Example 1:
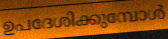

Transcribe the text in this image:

ഉപദേശിക്കുമ്പോൾ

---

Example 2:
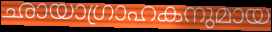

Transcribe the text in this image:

ഛായാഗ്രാഹകനുമായ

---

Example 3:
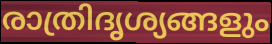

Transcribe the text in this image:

രാത്രിദൃശ്യങ്ങളും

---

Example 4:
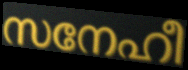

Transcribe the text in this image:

സനേഹീ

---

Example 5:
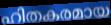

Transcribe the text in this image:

ഹിതകരമായ